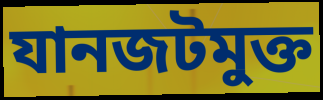
যানজটমুক্ত